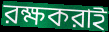
রক্ষকরাই